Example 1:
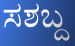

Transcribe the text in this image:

ಸಶಬ್ದ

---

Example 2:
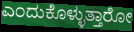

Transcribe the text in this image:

ಎಂದುಕೊಳ್ಳುತ್ತಾರೋ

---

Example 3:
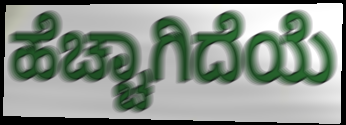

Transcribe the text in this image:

ಹೆಚ್ಚಾಗಿದೆಯೆ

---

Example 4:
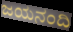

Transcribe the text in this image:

ಜಯನಂದಿ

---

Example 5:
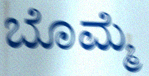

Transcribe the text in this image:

ಬೊಮ್ಮೆ